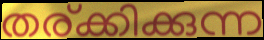
തര്ക്കിക്കുന്ന